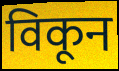
विकून